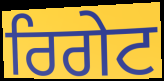
ਰਿਗੇਟ